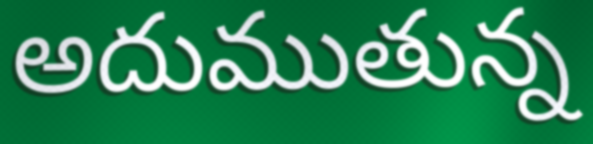
అదుముతున్న